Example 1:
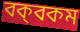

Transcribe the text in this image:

বক্‌বকম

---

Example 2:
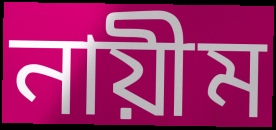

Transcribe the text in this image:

নায়ীম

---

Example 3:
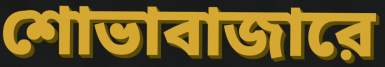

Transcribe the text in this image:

শোভাবাজারে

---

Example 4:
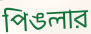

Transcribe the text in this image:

পিঙলার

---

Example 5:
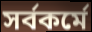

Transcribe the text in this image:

সর্বকর্মে